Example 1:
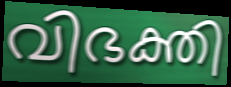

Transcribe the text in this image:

വിഭക്തി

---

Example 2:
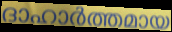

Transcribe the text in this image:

ദാഹാർത്തമായ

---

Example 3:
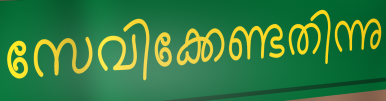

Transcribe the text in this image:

സേവിക്കേണ്ടതിന്നു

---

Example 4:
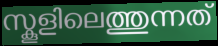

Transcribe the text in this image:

സ്കൂളിലെത്തുന്നത്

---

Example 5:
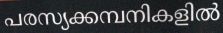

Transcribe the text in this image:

പരസ്യക്കമ്പനികളിൽ